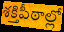
శక్తిపీఠాల్లో